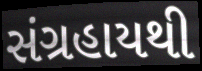
સંગ્રહાયથી